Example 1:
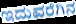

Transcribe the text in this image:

ಇದುವರೆಗಿನ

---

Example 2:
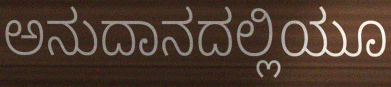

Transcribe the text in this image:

ಅನುದಾನದಲ್ಲಿಯೂ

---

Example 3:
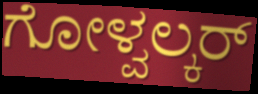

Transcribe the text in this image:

ಗೋಳ್ವಲ್ಕರ್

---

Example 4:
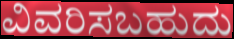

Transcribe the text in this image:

ವಿವರಿಸಬಹುದು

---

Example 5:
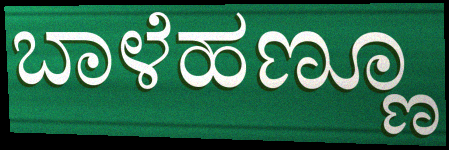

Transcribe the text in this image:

ಬಾಳೆಹಣ್ಣೂ